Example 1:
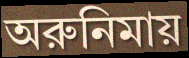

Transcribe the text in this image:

অরুনিমায়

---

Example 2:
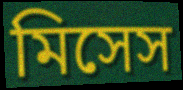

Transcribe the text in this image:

মিসেস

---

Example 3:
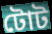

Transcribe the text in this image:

টোট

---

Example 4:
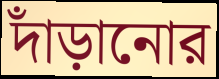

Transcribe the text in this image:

দাঁড়ানোর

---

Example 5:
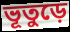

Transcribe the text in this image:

ভূতুড়ে